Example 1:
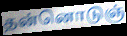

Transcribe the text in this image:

தன்னொடுஞ்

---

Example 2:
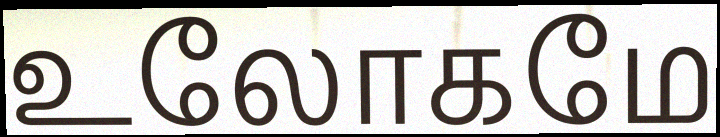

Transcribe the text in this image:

உலோகமே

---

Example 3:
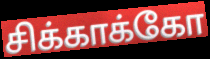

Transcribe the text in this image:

சிக்காக்கோ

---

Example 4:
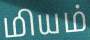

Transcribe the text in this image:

மியம்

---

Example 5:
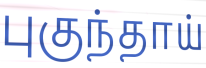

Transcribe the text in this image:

புகுந்தாய்